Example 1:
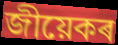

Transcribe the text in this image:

জীয়েকৰ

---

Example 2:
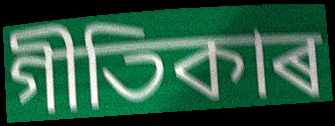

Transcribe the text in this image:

গীতিকাৰ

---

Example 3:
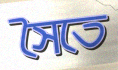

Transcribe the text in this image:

সৈতে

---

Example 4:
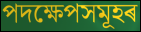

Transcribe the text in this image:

পদক্ষেপসমূহৰ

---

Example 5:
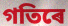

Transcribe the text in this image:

গতিৰে